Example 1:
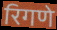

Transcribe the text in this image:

रिगणे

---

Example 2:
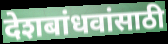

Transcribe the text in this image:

देशबांधवांसाठी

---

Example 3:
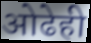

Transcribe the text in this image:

ओढेही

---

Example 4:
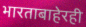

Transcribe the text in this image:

भारताबाहेरही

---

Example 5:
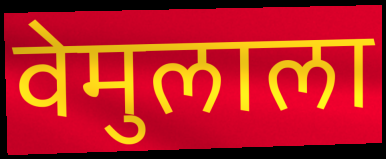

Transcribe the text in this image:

वेमुलाला